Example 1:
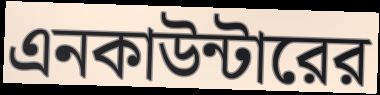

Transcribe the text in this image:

এনকাউন্টারের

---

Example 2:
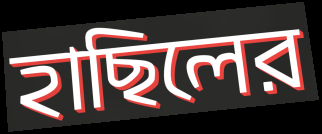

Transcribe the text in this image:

হাছিলের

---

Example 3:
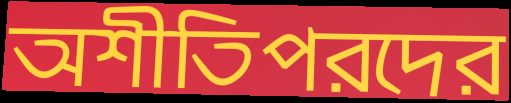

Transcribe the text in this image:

অশীতিপরদের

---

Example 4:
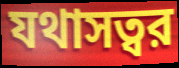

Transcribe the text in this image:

যথাসত্বর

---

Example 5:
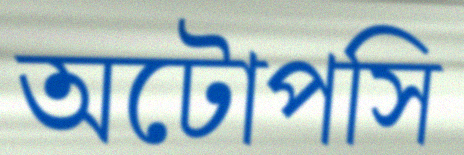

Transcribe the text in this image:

অটোপসি